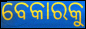
ବେକାରକୁ